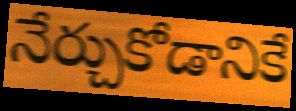
నేర్చుకోడానికే